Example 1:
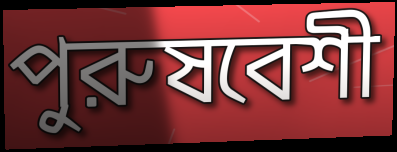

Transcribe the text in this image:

পুরুষবেশী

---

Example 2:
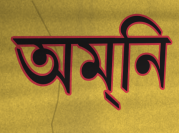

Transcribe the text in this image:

অম্‌নি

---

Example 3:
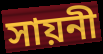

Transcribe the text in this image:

সায়নী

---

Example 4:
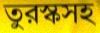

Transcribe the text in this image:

তুরস্কসহ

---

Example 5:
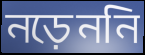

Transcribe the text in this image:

নড়েননি